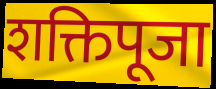
शक्तिपूजा